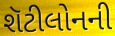
શૅટીલોનની